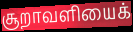
சூறாவளியைக்